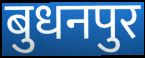
बुधनपुर